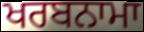
ਖਰਬਨਾਮਾ